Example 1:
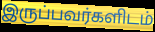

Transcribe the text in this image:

இருப்பவர்களிடம்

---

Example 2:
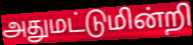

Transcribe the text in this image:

அதுமட்டுமின்றி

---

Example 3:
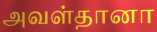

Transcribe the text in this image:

அவள்தானா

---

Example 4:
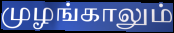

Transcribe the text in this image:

முழங்காலும்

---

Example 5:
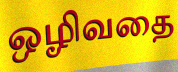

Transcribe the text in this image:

ஒழிவதை